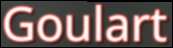
Goulart